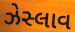
ઝેસ્લાવ